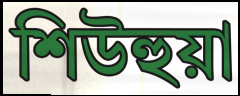
শিউহুয়া